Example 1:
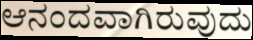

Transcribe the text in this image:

ಆನಂದವಾಗಿರುವುದು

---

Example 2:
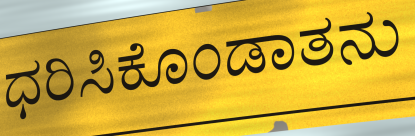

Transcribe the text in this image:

ಧರಿಸಿಕೊಂಡಾತನು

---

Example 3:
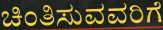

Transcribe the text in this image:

ಚಿಂತಿಸುವವರಿಗೆ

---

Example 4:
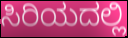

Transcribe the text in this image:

ಸಿರಿಯದಲ್ಲಿ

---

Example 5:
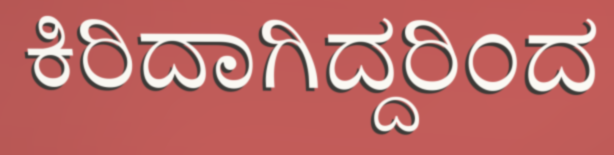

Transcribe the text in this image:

ಕಿರಿದಾಗಿದ್ದರಿಂದ